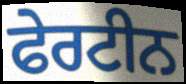
ਫੇਰਟੀਨ